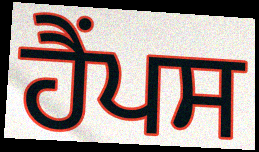
ਹੈਂਪਸ